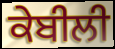
ਕੇਬੀਲੀ